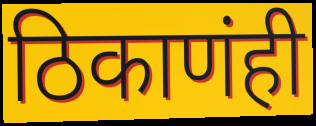
ठिकाणंही